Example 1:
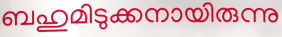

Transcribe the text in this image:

ബഹുമിടുക്കനായിരുന്നു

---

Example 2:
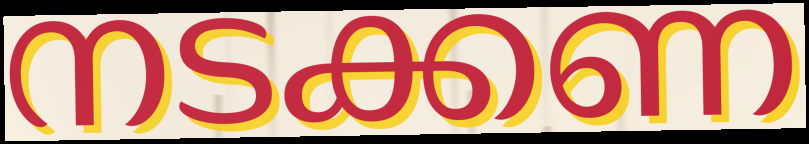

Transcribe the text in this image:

നടക്കണ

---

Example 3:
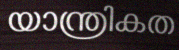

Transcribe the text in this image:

യാന്ത്രികത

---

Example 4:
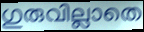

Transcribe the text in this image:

ഗുരുവില്ലാതെ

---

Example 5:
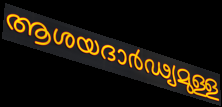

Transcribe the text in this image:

ആശയദാർഢ്യമുള്ള